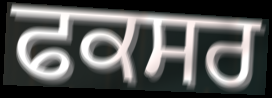
ਫਕਸਰ